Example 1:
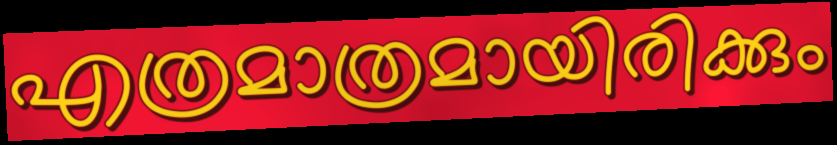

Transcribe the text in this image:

എത്രമാത്രമായിരിക്കും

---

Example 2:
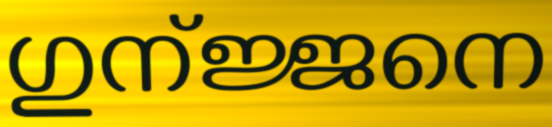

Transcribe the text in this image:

ഗുന്ജ്ജനെ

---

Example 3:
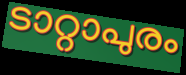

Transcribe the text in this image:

ടാറ്റാപുരം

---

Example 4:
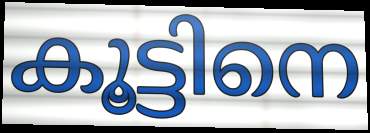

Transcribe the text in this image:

കൂട്ടിനെ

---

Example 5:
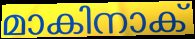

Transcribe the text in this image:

മാകിനാക്